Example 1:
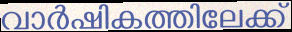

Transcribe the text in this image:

വാർഷികത്തിലേക്ക്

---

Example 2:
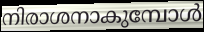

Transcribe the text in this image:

നിരാശനാകുമ്പോൾ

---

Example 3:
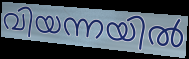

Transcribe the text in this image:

വിയന്നയിൽ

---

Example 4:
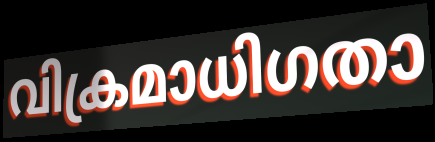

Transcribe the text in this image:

വിക്രമാധിഗതാ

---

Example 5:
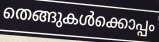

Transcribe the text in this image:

തെങ്ങുകൾക്കൊപ്പം